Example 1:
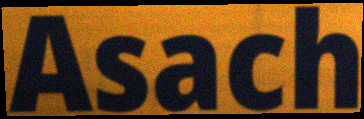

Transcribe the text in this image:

Asach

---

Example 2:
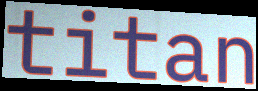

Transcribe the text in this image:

titan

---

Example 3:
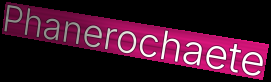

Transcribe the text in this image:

Phanerochaete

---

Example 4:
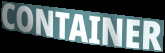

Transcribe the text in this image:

CONTAINER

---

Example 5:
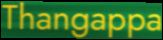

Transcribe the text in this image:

Thangappa